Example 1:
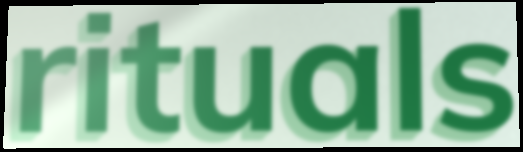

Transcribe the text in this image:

rituals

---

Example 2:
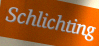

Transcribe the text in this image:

Schlichting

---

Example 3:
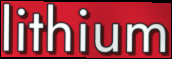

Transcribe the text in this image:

lithium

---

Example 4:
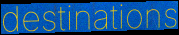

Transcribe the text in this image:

destinations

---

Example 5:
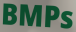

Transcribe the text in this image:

BMPs